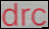
drc